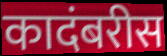
कादंबरीस